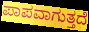
ಪಾಪವಾಗುತ್ತದೆ